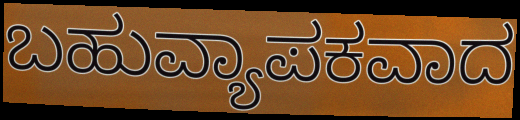
ಬಹುವ್ಯಾಪಕವಾದ